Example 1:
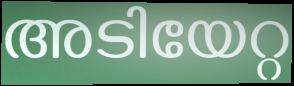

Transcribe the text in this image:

അടിയേറ്റ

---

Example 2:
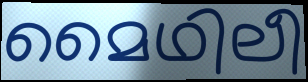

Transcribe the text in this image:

മൈഥിലീ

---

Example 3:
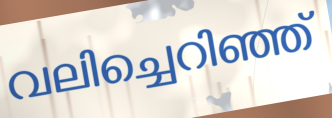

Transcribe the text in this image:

വലിച്ചെറിഞ്ഞ്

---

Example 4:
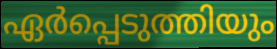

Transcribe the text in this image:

ഏർപ്പെടുത്തിയും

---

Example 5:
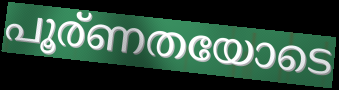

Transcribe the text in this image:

പൂര്ണതയോടെ